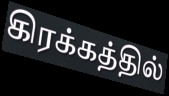
கிரக்கத்தில்